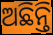
ଅଛିନ୍ତି